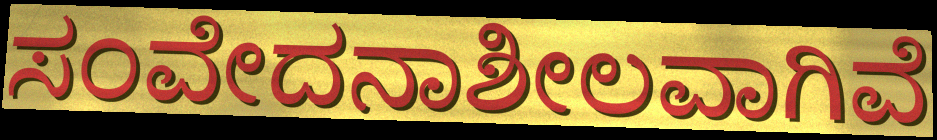
ಸಂವೇದನಾಶೀಲವಾಗಿವೆ